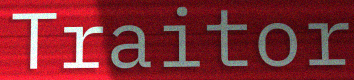
Traitor